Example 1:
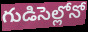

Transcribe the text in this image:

గుడిసెల్లోనో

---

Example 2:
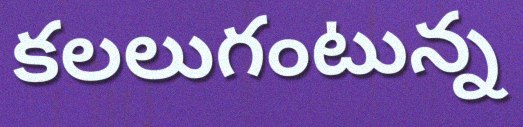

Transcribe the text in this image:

కలలుగంటున్న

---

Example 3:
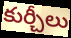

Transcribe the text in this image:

కుర్చీలు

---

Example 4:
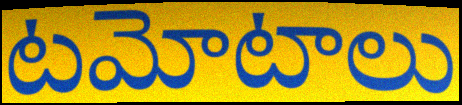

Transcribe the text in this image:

టమోటాలు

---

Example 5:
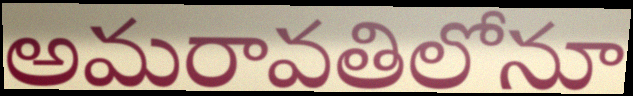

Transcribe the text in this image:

అమరావతిలోనూ